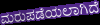
ಮರುಪಡೆಯಲಾಗಿದೆ